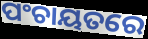
ପଂଚାୟତରେ